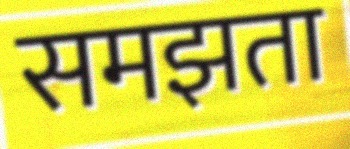
समझता